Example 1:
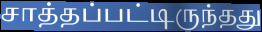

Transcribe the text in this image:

சாத்தப்பட்டிருந்தது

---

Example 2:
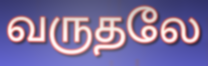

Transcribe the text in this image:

வருதலே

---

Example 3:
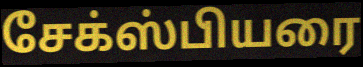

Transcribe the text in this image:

சேக்ஸ்பியரை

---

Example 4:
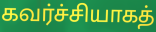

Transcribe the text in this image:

கவர்ச்சியாகத்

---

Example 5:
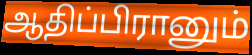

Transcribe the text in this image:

ஆதிப்பிரானும்